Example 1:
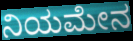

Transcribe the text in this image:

ನಿಯಮೇನ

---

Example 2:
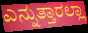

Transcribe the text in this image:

ಎನ್ನುತ್ತಾರಲ್ಲಾ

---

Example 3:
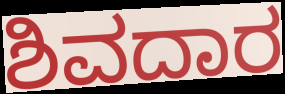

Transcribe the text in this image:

ಶಿವದಾರ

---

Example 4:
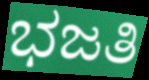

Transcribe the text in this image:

ಭಜತಿ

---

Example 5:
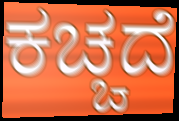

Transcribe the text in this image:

ಕಚ್ಚದೆ